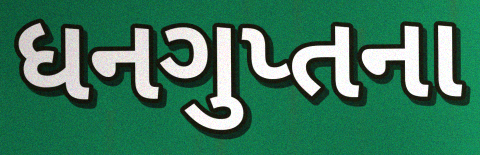
ધનગુપ્તના